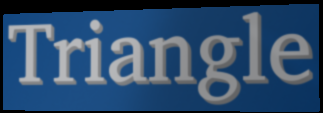
Triangle